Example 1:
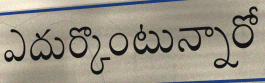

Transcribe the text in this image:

ఎదుర్కొంటున్నారో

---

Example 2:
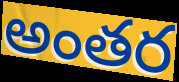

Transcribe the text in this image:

అంతర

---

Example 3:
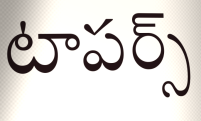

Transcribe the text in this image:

టాపర్స్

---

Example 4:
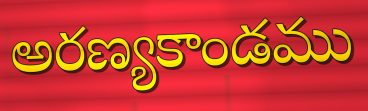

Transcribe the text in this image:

అరణ్యకాండము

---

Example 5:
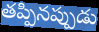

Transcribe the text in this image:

తప్పినప్పుడు